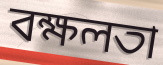
বক্ষলতা